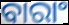
ବାରାଂ